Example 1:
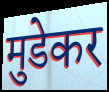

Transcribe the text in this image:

मुडेकर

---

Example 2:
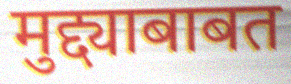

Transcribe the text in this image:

मुद्द्याबाबत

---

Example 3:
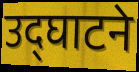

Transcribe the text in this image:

उद्घाटने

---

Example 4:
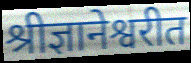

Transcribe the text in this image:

श्रीज्ञानेश्वरीत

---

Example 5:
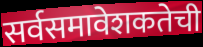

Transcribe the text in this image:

सर्वसमावेशकतेची